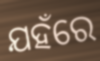
ଯହଁରେ